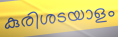
കുരിശടയാളം